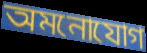
অমনোযোগ